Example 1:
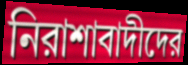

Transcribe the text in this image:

নিরাশাবাদীদের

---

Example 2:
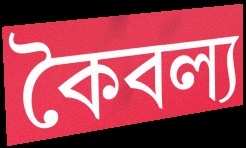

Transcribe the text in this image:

কৈবল্য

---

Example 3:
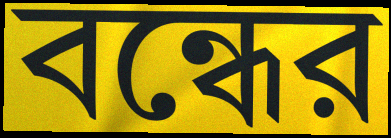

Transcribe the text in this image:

বন্ধের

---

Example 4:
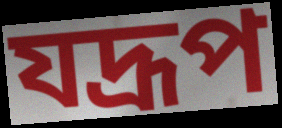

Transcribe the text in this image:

যদ্রূপ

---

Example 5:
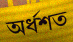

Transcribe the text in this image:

অর্ধশত